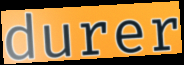
durer